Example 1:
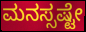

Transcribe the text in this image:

ಮನಸ್ಸಷ್ಟೇ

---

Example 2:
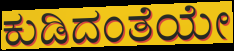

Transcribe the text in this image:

ಕುಡಿದಂತೆಯೇ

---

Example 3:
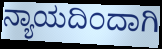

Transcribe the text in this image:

ನ್ಯಾಯದಿಂದಾಗಿ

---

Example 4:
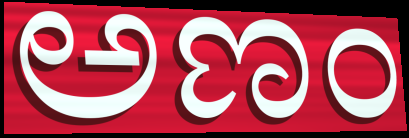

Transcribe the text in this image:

ಅಣಂ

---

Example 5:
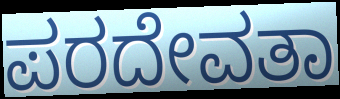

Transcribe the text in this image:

ಪರದೇವತಾ